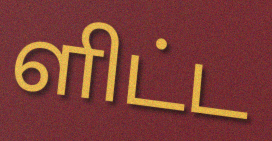
ளிட்ட